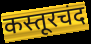
कस्तूरचंद